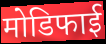
मोडिफाई